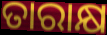
ତାରାକ୍ଷ